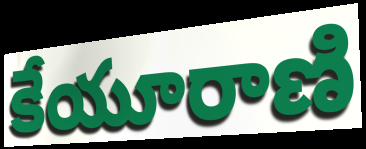
కేయూరాణి